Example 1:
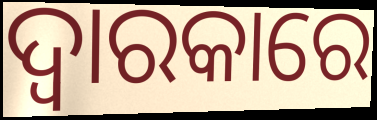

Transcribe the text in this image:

ଦ୍ବାରକାରେ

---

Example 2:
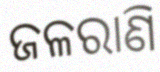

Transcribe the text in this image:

ଜଳରାଣି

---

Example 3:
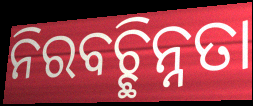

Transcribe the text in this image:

ନିରବଚ୍ଛିନ୍ନତା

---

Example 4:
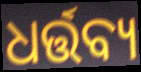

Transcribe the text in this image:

ଧର୍ତ୍ତବ୍ୟ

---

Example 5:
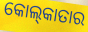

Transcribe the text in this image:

କୋଲ୍‍କାତାର